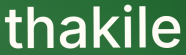
thakile